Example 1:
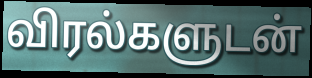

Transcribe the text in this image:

விரல்களுடன்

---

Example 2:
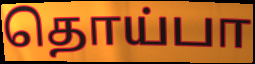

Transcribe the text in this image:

தொய்பா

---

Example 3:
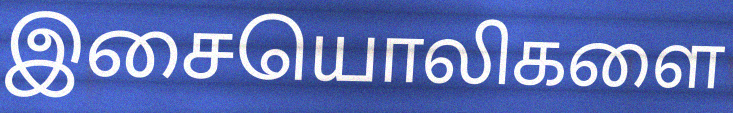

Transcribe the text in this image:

இசையொலிகளை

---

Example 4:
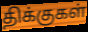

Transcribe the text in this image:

திக்குகள்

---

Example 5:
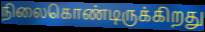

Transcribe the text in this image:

நிலைகொண்டிருக்கிறது